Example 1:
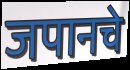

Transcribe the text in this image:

जपानचे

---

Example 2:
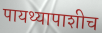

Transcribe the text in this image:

पायथ्यापाशीच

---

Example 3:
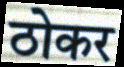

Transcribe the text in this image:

ठोकर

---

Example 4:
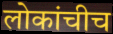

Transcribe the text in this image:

लोकांचीच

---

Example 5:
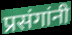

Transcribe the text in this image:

प्रसंगांनी